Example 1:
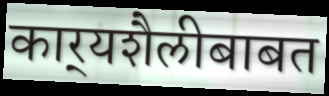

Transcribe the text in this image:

कार्यशैलीबाबत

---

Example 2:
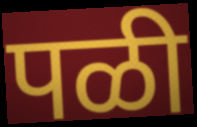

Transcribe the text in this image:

पळी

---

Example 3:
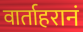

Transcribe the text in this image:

वार्ताहरानं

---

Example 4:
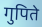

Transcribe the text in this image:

गुपिते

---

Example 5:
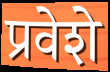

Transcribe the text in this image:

प्रवेशे